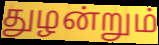
துழன்றும்